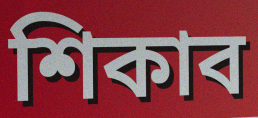
শিকাব